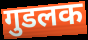
गुडलक